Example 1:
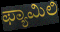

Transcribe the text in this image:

ಫ್ಯಾಮಿಲಿ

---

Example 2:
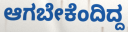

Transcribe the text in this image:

ಆಗಬೇಕೆಂದಿದ್ದ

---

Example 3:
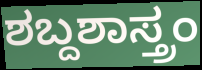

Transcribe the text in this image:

ಶಬ್ದಶಾಸ್ತ್ರಂ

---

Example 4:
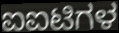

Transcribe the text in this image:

ಐಐಟಿಗಳ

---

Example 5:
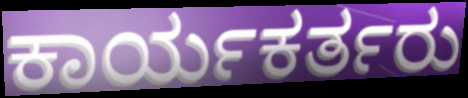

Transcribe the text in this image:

ಕಾರ್ಯಕರ್ತರು